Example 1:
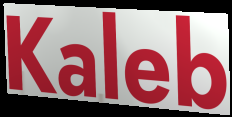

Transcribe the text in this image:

Kaleb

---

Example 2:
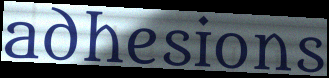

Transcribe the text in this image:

adhesions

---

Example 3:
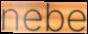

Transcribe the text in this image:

nebe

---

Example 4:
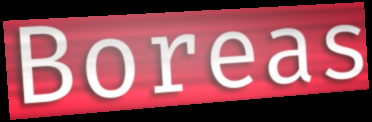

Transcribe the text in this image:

Boreas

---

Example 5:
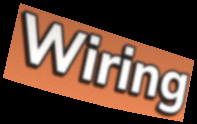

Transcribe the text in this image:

Wiring